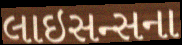
લાઇસન્સના